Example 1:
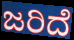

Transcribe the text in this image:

ಜರಿದೆ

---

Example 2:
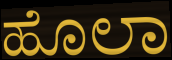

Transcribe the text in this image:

ಹೊಲಾ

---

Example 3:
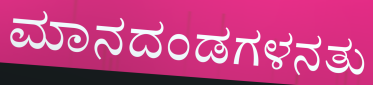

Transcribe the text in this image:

ಮಾನದಂಡಗಳನತು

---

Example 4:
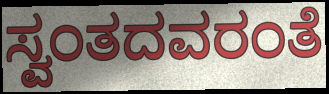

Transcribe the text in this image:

ಸ್ವಂತದವರಂತೆ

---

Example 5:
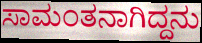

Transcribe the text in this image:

ಸಾಮಂತನಾಗಿದ್ದನು